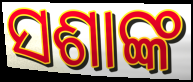
ସଶାଙ୍କ